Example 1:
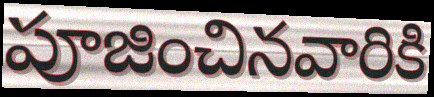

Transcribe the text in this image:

పూజించినవారికి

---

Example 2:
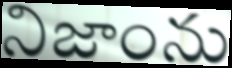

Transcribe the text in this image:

నిజాంను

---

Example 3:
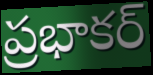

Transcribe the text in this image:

ప్రభాకర్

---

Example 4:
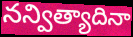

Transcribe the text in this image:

నన్విత్యాదినా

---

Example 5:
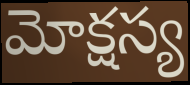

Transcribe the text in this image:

మోక్షస్య